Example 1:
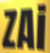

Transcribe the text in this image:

ZAi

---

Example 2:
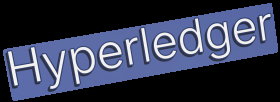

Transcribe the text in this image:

Hyperledger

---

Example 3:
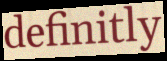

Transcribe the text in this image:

definitly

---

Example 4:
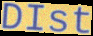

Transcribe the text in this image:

DIst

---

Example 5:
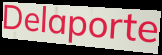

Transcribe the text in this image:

Delaporte